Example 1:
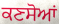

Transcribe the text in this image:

ਕਣਸੋਆਂ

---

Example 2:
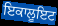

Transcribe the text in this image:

ਇਕਾਲੂਇਟ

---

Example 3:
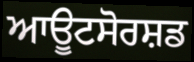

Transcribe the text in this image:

ਆਊਟਸੋਰਸ਼ਡ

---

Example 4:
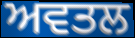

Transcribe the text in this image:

ਅਵਤਲ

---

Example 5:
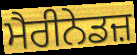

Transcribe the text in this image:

ਮੈਰੀਨੇਡਜ਼